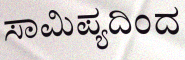
ಸಾಮಿಪ್ಯದಿಂದ